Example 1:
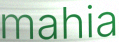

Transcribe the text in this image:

mahia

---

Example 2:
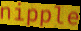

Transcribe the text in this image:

nipple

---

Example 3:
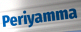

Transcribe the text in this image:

Periyamma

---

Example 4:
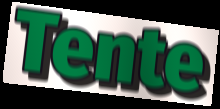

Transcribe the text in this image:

Tente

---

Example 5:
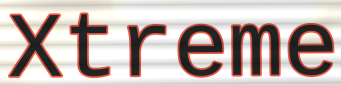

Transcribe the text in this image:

Xtreme